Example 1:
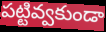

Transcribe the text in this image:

పట్టివ్వకుండా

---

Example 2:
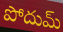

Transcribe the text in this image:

పోదుమ్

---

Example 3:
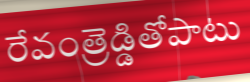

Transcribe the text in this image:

రేవంత్రెడ్డితోపాటు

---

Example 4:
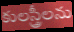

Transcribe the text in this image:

కులస్త్రీలను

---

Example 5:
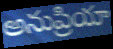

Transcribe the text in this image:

అనుప్రియా